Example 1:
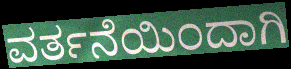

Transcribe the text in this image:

ವರ್ತನೆಯಿಂದಾಗಿ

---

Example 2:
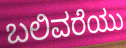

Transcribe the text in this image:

ಬಲಿವರೆಯು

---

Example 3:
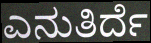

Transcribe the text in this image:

ಎನುತಿರ್ದೆ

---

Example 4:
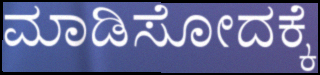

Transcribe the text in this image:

ಮಾಡಿಸೋದಕ್ಕೆ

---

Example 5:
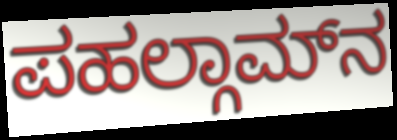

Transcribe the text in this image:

ಪಹಲ್ಗಾಮ್‌ನ